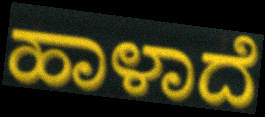
ಹಾಳಾದೆ